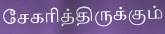
சேகரித்திருக்கும்